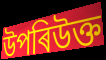
উপৰিউক্ত